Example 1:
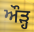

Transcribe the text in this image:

ਔੜ੍ਹ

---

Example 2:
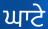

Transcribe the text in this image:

ਘਾਟੇ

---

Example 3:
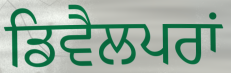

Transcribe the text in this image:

ਡਿਵੈਲਪਰਾਂ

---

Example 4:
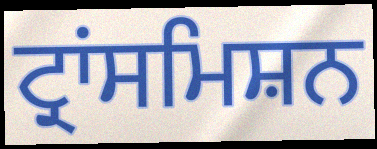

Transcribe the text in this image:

ਟ੍ਰਾਂਸਮਿਸ਼ਨ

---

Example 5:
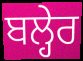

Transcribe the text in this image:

ਬਲ੍ਹੇਰ